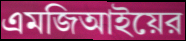
এমজিআইয়ের